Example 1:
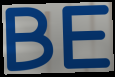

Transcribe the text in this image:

BE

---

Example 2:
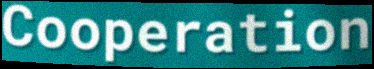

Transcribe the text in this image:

Cooperation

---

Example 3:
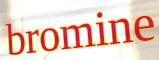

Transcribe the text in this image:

bromine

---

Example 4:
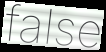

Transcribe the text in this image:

false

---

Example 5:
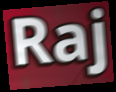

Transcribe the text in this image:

Raj